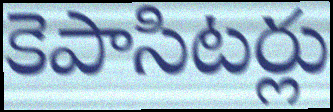
కెపాసిటర్లు